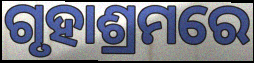
ଗୃହାଶ୍ରମରେ